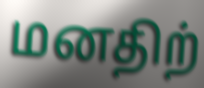
மனதிற்